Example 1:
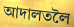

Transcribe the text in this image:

আদালতলৈ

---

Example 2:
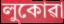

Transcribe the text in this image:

লুকোৱা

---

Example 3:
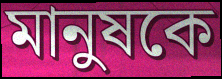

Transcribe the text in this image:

মানুষকে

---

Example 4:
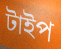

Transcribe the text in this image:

টাইপ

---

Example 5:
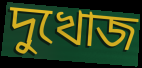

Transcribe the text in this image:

দুখোজ